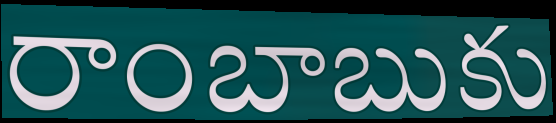
రాంబాబుకు